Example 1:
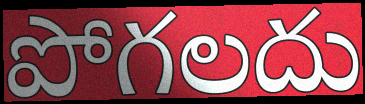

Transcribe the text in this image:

పోగలదు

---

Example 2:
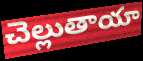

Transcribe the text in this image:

చెల్లుతాయా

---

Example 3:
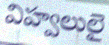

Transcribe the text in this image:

విహ్వలులై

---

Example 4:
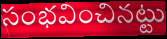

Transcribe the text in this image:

సంభవించినట్టు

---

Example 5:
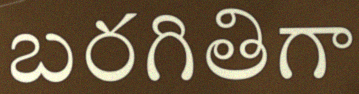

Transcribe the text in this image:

బరగితిగా